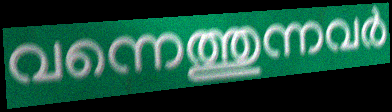
വന്നെത്തുന്നവർ